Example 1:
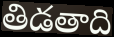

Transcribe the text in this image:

తిడతాది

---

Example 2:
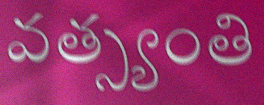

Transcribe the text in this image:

వత్స్యంతి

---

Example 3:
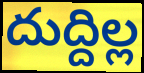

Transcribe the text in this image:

దుద్దిల్ల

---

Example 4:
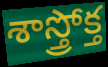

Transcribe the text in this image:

శాస్త్రోక్త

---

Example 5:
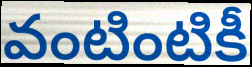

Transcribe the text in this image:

వంటింటికీ